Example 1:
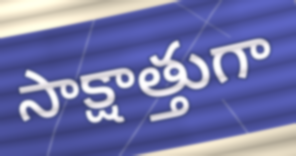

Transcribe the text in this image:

సాక్షాత్తుగా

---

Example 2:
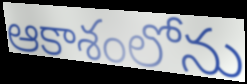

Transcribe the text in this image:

ఆకాశంలోను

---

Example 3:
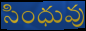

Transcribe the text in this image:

సింధువు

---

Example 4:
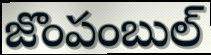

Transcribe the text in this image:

జొంపంబుల్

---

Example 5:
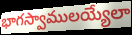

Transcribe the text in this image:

భాగస్వాములయ్యేలా